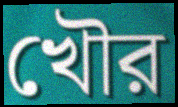
খৌর